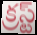
క్రస్ట్